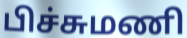
பிச்சுமணி